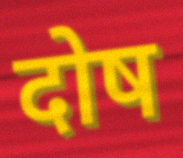
दोष